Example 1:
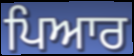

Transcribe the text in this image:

ਪਿਆਰ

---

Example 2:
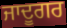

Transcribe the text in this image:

ਜਾਦੂਗਰ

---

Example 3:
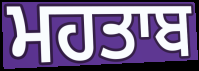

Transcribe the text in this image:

ਮਹਤਾਬ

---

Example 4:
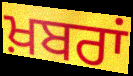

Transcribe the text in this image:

ਖ਼ਬਰਾਂ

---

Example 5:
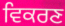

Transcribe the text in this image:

ਵਿਕਰਣ